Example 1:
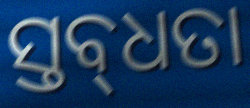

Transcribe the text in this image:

ସ୍ତବ୍‌ଧତା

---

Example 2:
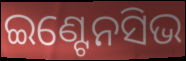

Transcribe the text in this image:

ଇଣ୍ଟେନସିଭ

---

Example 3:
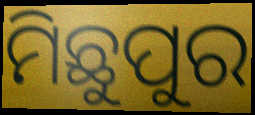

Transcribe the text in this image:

ମିଛୁପୁର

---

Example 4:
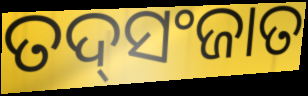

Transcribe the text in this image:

ତଦ୍‌ସଂଜାତ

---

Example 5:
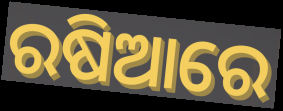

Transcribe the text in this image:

ରଷିଆରେ